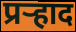
प्रर्‍हाद